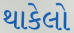
થાકેલો